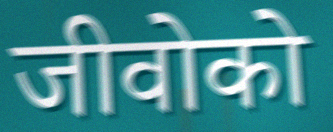
जीवोको